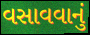
વસાવવાનું